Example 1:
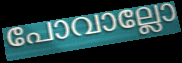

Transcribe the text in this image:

പോവാല്ലോ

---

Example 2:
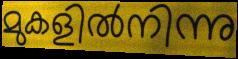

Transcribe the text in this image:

മുകളിൽനിന്നു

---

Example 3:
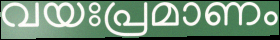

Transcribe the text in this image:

വയഃപ്രമാണം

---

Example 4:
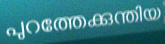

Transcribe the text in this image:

പുറത്തേക്കുന്തിയ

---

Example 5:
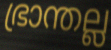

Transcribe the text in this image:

ഭ്രാന്തല്ല